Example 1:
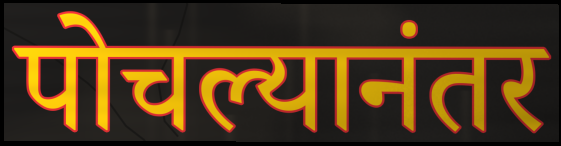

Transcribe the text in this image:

पोचल्यानंतर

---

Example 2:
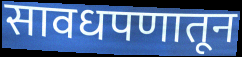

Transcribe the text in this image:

सावधपणातून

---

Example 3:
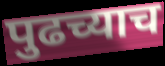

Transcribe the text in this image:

पुढच्याच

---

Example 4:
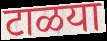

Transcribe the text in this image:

टाळया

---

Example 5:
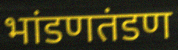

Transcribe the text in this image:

भांडणतंडण